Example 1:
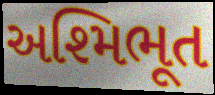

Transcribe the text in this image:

અશ્મિભૂત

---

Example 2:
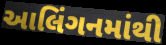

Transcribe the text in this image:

આલિંગનમાંથી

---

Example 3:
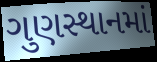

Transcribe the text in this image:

ગુણસ્થાનમાં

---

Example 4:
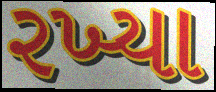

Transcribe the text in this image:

રખ્યા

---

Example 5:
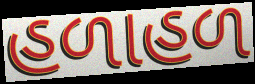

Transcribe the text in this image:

હળાહળ